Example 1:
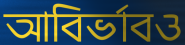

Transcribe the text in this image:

আবির্ভাবও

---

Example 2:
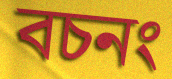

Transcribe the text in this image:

বচনং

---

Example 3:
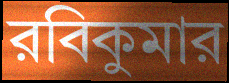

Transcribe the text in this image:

রবিকুমার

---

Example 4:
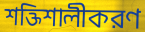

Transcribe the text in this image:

শক্তিশালীকরণ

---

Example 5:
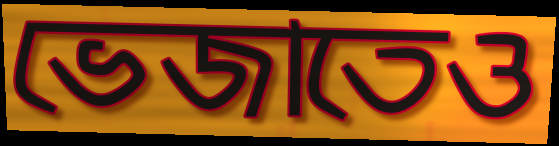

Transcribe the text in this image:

ভেজাতেও